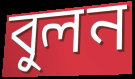
বুলন